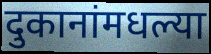
दुकानांमधल्या